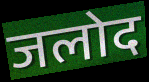
जलोद